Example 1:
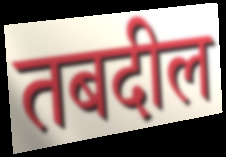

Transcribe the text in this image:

तबदील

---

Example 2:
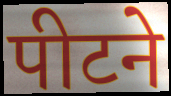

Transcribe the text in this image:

पीटने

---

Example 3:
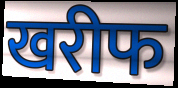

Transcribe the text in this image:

खरीफ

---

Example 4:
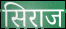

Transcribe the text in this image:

सिराज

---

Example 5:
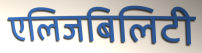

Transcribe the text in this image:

एलिजबिलिटी